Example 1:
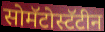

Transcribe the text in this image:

सोमॅटोस्टॅटीन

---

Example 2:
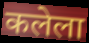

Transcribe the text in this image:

कलेला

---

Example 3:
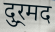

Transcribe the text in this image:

दुर्मद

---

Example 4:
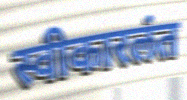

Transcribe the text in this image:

स्वीकारलंत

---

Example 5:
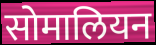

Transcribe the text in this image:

सोमालियन